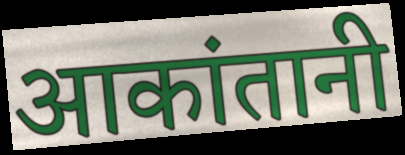
आकांतानी